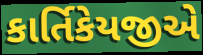
કાર્તિકેયજીએ